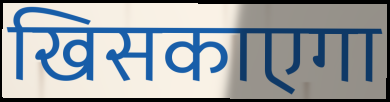
खिसकाएगा